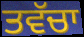
ਤਵੱਚਾ